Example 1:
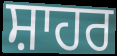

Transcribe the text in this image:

ਸ਼ਾਹਰ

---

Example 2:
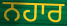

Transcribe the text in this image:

ਨਹਾਰ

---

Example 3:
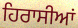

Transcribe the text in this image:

ਹਿਰਾਸੀਆਂ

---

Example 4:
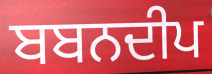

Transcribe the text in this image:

ਬਬਨਦੀਪ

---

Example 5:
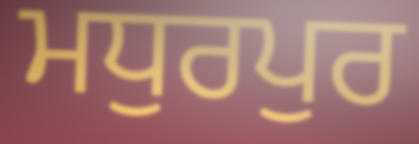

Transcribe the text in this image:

ਮਧੁਰਪੁਰ